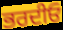
ਭਰਦੀਓ